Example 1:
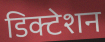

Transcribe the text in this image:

डिक्टेशन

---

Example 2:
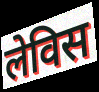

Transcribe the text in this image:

लेविस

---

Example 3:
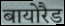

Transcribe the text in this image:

बायोरैड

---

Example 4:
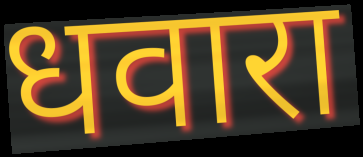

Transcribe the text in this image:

धवारा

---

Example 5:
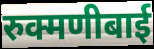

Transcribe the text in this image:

रुक्मणीबाई